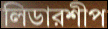
লিডারশীপ